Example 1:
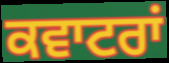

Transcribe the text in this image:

ਕਵਾਟਰਾਂ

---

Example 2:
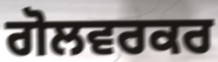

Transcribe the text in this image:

ਗੋਲਵਰਕਰ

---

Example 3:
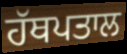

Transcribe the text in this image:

ਹੱਥਪਤਾਲ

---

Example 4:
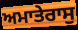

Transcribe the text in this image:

ਅਮਾਤੇਰਾਸੁ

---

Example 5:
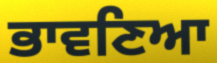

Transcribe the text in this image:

ਭਾਵਣਿਆ